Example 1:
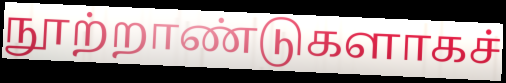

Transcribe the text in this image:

நூற்றாண்டுகளாகச்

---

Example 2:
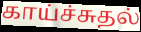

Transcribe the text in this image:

காய்ச்சுதல்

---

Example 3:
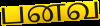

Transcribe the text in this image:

பனவ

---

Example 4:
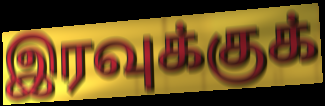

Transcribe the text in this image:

இரவுக்குக்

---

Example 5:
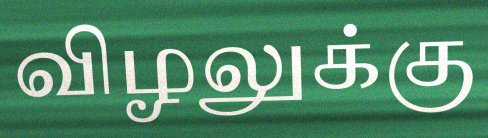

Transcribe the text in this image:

விழலுக்கு